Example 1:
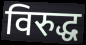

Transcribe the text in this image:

विरुद्ध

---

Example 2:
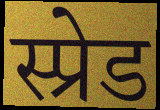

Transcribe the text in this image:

स्प्रेड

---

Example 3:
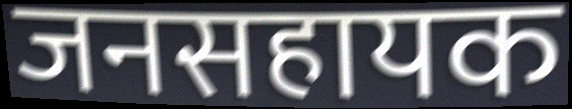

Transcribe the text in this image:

जनसहायक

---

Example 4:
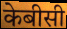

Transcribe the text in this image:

केबीसी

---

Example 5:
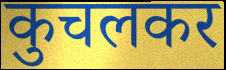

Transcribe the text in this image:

कुचलकर